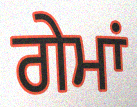
ਗੇਮਾਂ